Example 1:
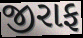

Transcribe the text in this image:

જીરાફ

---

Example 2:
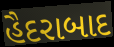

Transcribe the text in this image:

હૈદરાબાદ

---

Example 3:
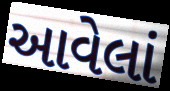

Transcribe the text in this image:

આવેલાં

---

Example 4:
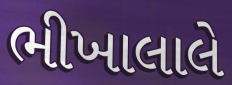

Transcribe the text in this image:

ભીખાલાલે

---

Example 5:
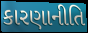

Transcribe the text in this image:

કારણાનીતિ